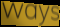
ways